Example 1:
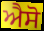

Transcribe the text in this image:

ਐਸੋ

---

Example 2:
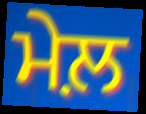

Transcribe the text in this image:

ਮੇਲ਼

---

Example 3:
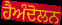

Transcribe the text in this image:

ਹੈਅੰਦੋਲਨ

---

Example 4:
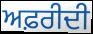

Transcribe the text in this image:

ਅਫ਼ਰੀਦੀ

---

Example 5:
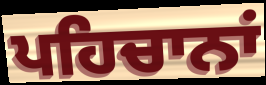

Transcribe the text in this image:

ਪਹਿਚਾਨਾਂ